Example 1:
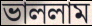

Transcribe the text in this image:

ভাললাম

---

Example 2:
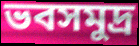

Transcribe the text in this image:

ভবসমুদ্র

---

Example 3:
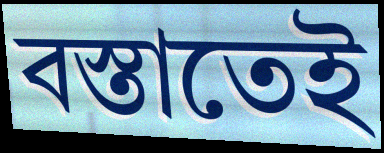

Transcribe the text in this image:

বস্তাতেই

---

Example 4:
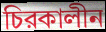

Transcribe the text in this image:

চিরকালীন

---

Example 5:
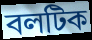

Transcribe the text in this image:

বলটিক